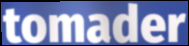
tomader